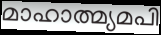
മാഹാത്മ്യമപി